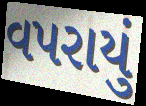
વપરાયું